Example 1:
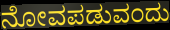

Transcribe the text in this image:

ನೋವಪಡುವಂದು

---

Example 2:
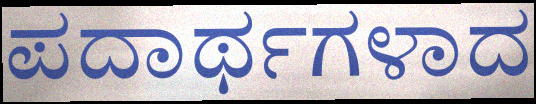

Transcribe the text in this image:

ಪದಾರ್ಥಗಳಾದ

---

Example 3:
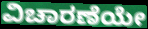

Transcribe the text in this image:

ವಿಚಾರಣೆಯೇ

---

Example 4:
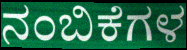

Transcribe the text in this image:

ನಂಬಿಕೆಗಳ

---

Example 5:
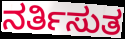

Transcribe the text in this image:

ನರ್ತಿಸುತ